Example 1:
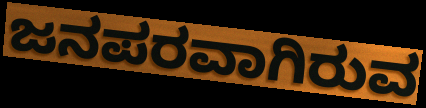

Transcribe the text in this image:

ಜನಪರವಾಗಿರುವ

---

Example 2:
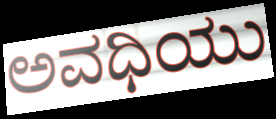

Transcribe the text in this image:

ಅವಧಿಯು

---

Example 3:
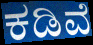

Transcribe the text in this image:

ಕಡಿವೆ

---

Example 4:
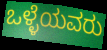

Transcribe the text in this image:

ಒಳ್ಳೆಯವರು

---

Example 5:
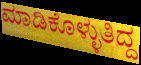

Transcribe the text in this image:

ಮಾಡಿಕೊಳ್ಳುತಿದ್ದ